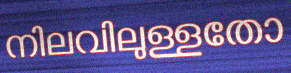
നിലവിലുള്ളതോ